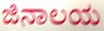
ಜಿನಾಲಯ